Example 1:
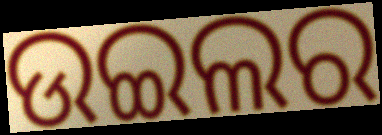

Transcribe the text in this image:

ଉଇଲର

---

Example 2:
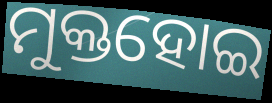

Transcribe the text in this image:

ମୁକ୍ତହୋଇ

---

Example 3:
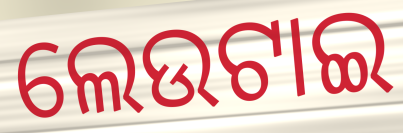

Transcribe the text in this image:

ଲେଉଟାଇ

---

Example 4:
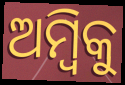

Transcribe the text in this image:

ଅମ୍ବିକୁ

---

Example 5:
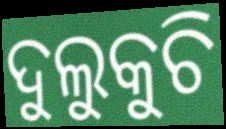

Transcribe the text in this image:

ଦୁଲୁକୁଚି